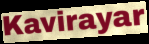
Kavirayar